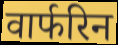
वार्फरिन